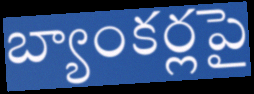
బ్యాంకర్లపై